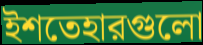
ইশতেহারগুলো